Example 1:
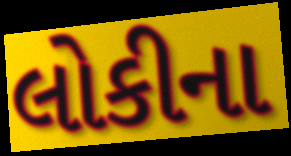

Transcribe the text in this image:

લોકીના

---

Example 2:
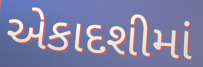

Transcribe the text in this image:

એકાદશીમાં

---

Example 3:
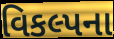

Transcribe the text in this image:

વિકલ્પના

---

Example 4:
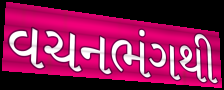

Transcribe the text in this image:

વચનભંગથી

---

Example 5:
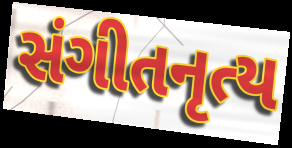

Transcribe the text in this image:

સંગીતનૃત્ય